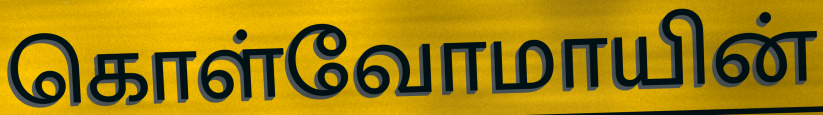
கொள்வோமாயின்